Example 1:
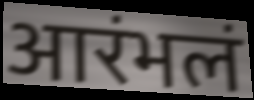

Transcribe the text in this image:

आरंभलं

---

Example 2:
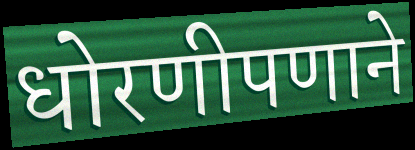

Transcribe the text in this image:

धोरणीपणाने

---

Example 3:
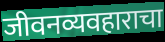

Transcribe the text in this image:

जीवनव्यवहाराचा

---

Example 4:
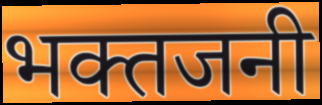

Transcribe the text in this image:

भक्तजनी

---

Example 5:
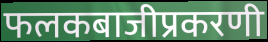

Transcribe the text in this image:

फलकबाजीप्रकरणी